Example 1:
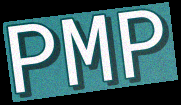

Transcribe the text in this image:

PMP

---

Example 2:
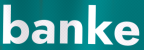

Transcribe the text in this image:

banke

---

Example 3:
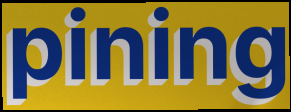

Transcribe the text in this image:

pining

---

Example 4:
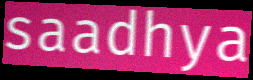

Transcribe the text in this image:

saadhya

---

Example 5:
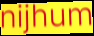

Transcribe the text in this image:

nijhum